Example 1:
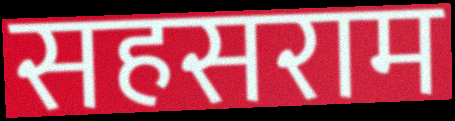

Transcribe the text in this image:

सहसराम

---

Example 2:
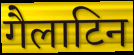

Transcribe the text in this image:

गैलाटिन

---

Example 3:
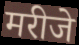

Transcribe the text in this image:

मरीजे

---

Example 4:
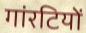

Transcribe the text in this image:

गांरटियों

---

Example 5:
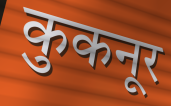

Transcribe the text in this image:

कुकनूर